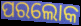
ପରଲୋକ